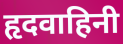
हृदवाहिनी